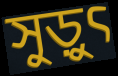
সুড়ুৎ